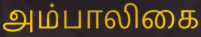
அம்பாலிகை